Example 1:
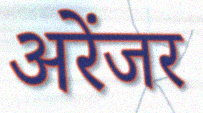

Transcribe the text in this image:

अरेंजर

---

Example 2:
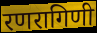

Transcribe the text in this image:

रणरागिणी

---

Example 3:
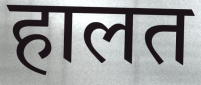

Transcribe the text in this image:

हालत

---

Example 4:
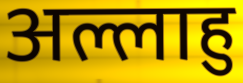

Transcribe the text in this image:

अल्लाहु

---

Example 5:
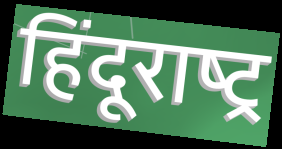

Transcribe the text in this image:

हिंदूराष्ट्र